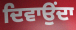
ਦਿਵਾਉਂਦਾ